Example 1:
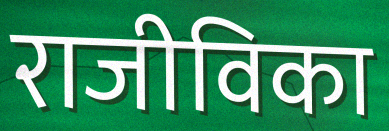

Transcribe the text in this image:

राजीविका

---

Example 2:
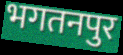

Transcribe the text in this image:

भगतनपुर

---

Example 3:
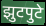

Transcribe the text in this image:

झुटपुटे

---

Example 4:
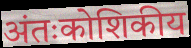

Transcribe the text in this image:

अंतःकोशिकीय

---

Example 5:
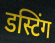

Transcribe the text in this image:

डस्टिंग